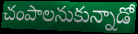
చంపాలనుకున్నాడో